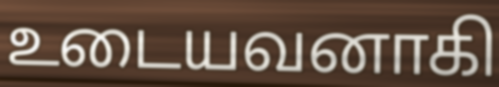
உடையவனாகி